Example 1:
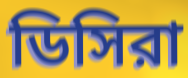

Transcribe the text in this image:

ডিসিরা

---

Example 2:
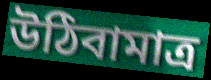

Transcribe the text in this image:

উঠিবামাত্র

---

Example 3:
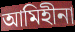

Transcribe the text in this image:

আমিহীনা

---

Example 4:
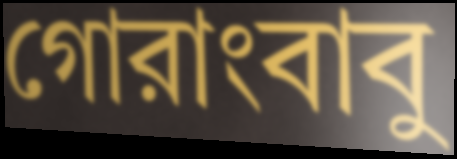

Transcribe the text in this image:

গোরাংবাবু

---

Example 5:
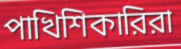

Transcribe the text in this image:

পাখিশিকারিরা